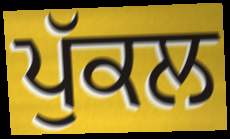
ਪੁੱਕਲ